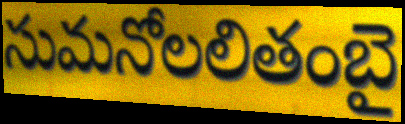
సుమనోలలితంబై